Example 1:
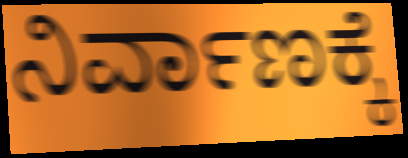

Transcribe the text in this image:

ನಿರ್ವಾಣಕ್ಕೆ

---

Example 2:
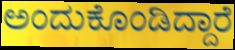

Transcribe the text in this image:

ಅಂದುಕೊಂಡಿದ್ದಾರೆ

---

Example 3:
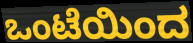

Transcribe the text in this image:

ಒಂಟೆಯಿಂದ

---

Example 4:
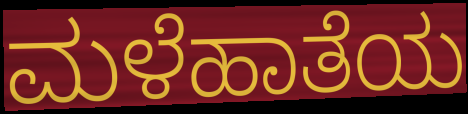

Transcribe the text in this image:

ಮಳೆಹಾತೆಯ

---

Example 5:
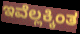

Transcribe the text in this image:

ಇವೆಲ್ಲಕ್ಕಿಂತ